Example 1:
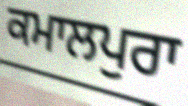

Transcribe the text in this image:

ਕਮਾਲਪੁਰਾ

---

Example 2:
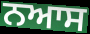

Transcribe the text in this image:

ਨਆਸ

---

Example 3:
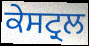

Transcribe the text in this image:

ਕੇਸਟ੍ਰਲ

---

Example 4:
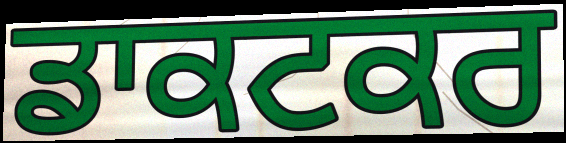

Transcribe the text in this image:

ਡਾਕਟਕਰ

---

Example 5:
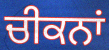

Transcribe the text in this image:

ਚੀਕਨਾਂ